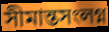
সীমান্তসংলগ্ন